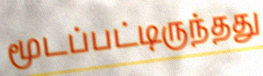
மூடப்பட்டிருந்தது